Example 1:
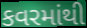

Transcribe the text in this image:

કવરમાંથી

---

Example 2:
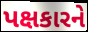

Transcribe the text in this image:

પક્ષકારને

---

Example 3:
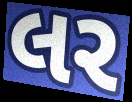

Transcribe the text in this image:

લર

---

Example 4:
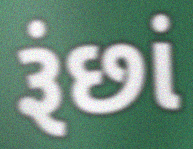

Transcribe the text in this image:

રૂંછાં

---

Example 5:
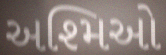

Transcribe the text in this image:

અશ્મિઓ